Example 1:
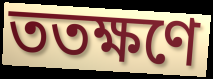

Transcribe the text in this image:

ততক্ষণে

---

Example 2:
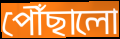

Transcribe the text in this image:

পৌঁছালো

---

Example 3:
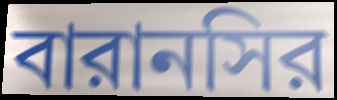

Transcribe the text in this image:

বারানসির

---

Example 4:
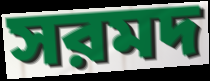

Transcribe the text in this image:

সরমদ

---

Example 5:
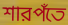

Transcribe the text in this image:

শারপঁতে